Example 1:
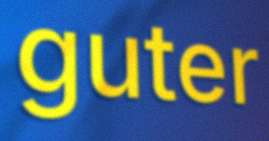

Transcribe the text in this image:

guter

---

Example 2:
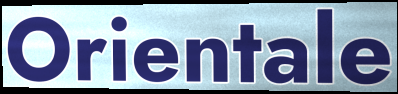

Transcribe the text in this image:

Orientale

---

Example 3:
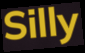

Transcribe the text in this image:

Silly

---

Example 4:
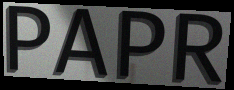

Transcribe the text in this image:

PAPR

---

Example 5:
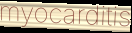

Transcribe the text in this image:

myocarditis